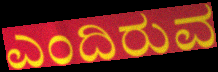
ಎಂದಿರುವ